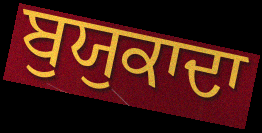
ਬੁਯੁਕਾਦਾ